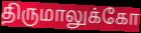
திருமாலுக்கோ